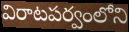
విరాటపర్వంలోని